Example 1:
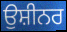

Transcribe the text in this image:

ਉਸ਼ੀਨਰ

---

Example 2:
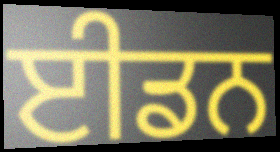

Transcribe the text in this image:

ਈਡਨ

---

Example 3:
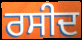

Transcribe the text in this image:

ਰਸੀਦ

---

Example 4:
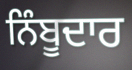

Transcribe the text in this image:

ਨਿੰਬੂਦਾਰ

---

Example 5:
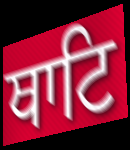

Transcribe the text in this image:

ਥਾਟਿ